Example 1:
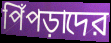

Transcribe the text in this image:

পিঁপড়াদের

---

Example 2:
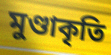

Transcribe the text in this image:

মুণ্ডাকৃতি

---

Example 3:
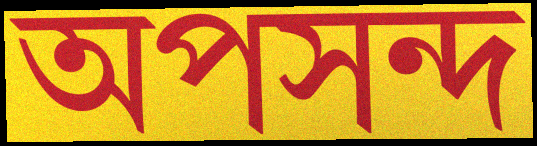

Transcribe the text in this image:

অপসন্দ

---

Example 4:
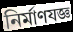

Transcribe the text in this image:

নির্মাণযজ্ঞ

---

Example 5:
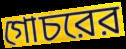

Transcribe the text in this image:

গোচরের